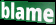
blame